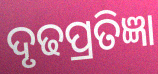
ଦୃଢପ୍ରତିଜ୍ଞା